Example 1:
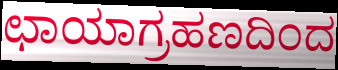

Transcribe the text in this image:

ಛಾಯಾಗ್ರಹಣದಿಂದ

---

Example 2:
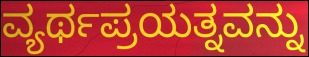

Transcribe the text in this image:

ವ್ಯರ್ಥಪ್ರಯತ್ನವನ್ನು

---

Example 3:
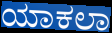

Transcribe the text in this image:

ಯಾಕಲಾ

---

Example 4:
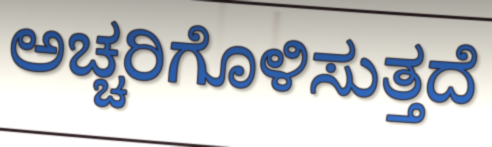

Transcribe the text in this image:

ಅಚ್ಚರಿಗೊಳಿಸುತ್ತದೆ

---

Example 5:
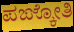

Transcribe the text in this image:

ಪಙ್ಕೋತಿ